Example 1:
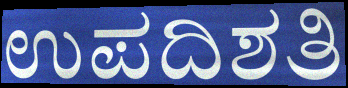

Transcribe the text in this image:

ಉಪದಿಶತಿ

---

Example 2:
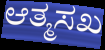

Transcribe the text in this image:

ಆತ್ಮಸಖ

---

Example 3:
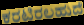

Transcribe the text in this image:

ಕರಟಿರಲಹುದೆ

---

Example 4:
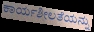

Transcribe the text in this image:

ಕಾರ್ಯಶೀಲತೆಯನ್ನು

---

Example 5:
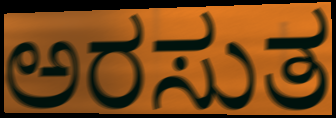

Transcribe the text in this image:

ಅರಸುತ